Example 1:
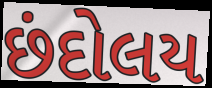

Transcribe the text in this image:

છંદોલય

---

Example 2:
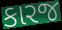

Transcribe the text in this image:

કારજ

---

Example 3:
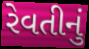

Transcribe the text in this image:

રેવતીનું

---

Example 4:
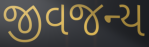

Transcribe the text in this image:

જીવજન્ય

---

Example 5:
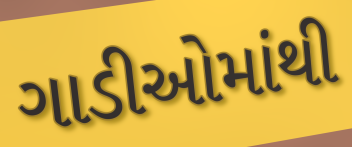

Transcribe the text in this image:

ગાડીઓમાંથી